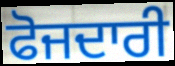
ਫੋਜਦਾਰੀ